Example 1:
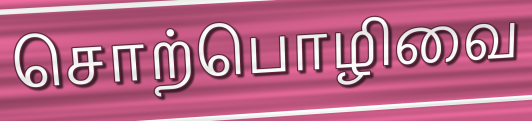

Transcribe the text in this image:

சொற்பொழிவை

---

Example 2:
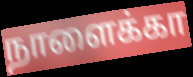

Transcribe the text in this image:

நாளைக்கா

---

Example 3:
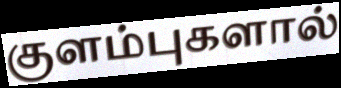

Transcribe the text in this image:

குளம்புகளால்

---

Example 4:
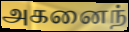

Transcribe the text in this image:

அகனைந்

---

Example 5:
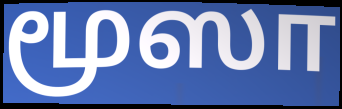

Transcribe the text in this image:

மூஸா